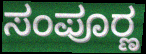
ಸಂಪೂರ್‍ಣ